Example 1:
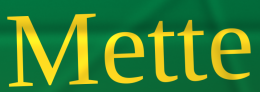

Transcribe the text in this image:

Mette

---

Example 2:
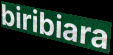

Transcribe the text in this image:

biribiara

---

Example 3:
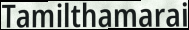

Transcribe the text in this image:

Tamilthamarai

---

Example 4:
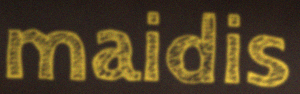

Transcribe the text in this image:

maidis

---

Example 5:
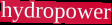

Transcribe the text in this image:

hydropower